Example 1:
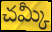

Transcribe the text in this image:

చమ్కీ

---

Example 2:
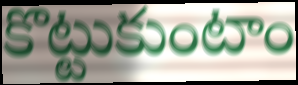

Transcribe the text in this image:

కొట్టుకుంటాం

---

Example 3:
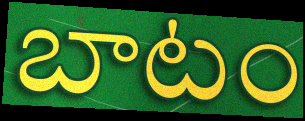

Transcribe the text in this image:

బాటం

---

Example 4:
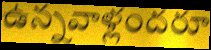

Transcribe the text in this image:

ఉన్నవాళ్లందరూ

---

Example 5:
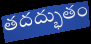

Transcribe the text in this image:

తదద్భుతం